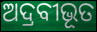
ଅଦ୍ରବୀଭୂତ